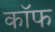
कॉफ